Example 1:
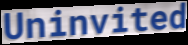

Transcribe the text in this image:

Uninvited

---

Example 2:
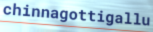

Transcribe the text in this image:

chinnagottigallu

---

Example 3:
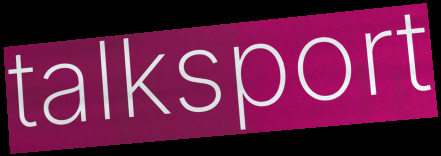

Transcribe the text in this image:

talksport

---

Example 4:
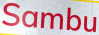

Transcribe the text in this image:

Sambu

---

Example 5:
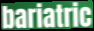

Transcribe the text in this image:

bariatric